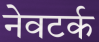
नेवटर्क